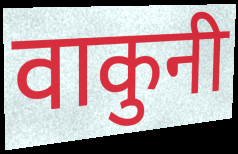
वाकुनी